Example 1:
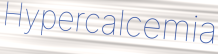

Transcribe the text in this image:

Hypercalcemia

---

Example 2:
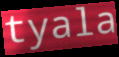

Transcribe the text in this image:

tyala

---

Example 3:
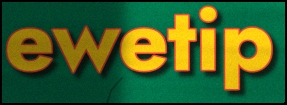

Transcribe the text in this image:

ewetip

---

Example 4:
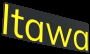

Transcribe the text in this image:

Itawa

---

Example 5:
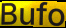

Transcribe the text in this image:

Bufo